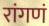
रांगणं